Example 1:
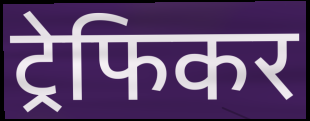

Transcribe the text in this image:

ट्रेफिकर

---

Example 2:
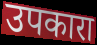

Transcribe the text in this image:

उपकारा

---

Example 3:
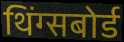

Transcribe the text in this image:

थिंग्सबोर्ड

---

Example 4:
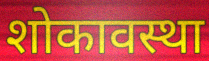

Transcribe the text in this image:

शोकावस्था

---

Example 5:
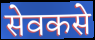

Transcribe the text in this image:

सेवकसे